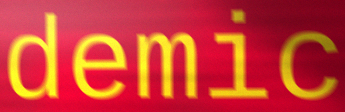
demic